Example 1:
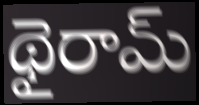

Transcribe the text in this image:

థైరామ్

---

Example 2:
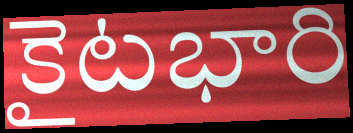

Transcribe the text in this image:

కైటభారి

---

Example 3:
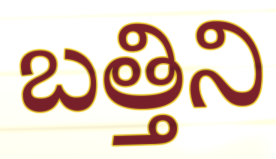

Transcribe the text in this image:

బత్తిని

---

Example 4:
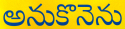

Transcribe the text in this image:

అనుకొనెను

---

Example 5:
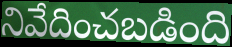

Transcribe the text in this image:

నివేదించబడింది